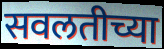
सवलतीच्या